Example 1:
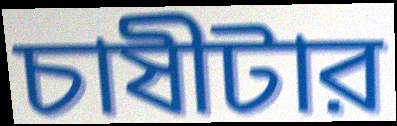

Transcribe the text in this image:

চাষীটার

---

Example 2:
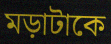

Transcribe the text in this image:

মড়াটাকে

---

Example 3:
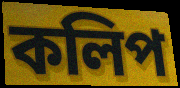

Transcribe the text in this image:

কলিপ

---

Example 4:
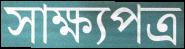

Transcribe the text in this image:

সাক্ষ্যপত্র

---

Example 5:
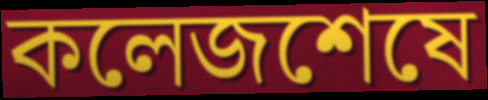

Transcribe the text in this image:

কলেজশেষে